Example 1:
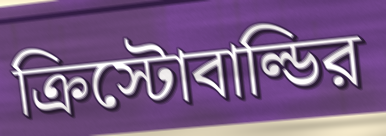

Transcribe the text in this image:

ক্রিস্টোবাল্ডির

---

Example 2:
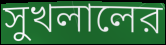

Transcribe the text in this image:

সুখলালের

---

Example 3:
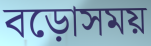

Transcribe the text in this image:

বড়োসময়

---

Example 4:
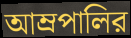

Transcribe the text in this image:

আম্রপালির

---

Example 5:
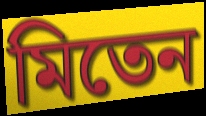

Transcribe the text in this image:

মিতেন